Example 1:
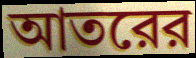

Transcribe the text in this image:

আতরের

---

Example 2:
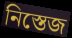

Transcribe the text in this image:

নিস্তেজ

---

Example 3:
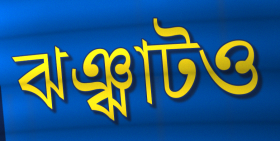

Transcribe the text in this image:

ঝঞ্ঝাটও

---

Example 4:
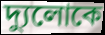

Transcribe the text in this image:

দ্যুলোকে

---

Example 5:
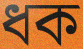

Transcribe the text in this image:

ধক